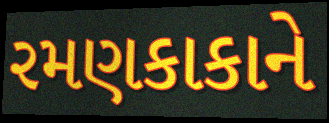
રમણકાકાને